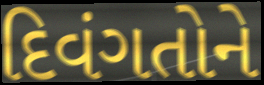
દિવંગતોને